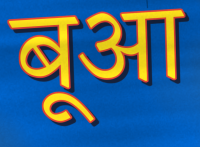
बूआ